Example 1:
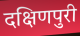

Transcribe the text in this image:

दक्षिणपुरी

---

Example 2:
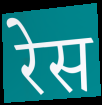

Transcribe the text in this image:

रेस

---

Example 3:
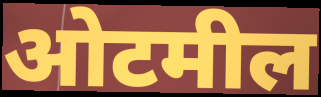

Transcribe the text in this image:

ओटमील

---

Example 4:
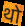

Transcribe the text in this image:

थो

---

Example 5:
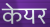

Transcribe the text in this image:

केयर